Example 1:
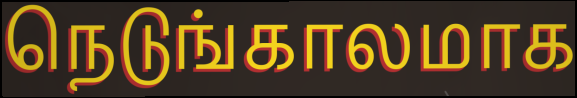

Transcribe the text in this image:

நெடுங்காலமாக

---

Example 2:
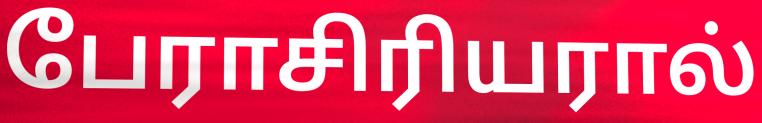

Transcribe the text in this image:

பேராசிரியரால்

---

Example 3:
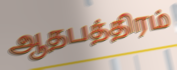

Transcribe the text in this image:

ஆதபத்திரம்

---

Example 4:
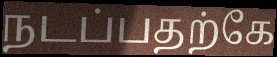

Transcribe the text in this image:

நடப்பதற்கே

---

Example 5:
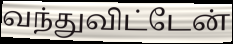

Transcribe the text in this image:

வந்துவிட்டேன்